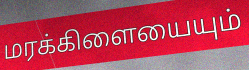
மரக்கிளையையும்